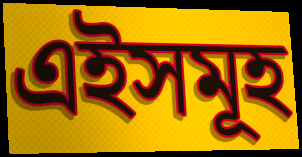
এইসমূহ